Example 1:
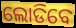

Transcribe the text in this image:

ଲୋଡିବେ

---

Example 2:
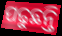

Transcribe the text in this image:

ପଢୁଛନ୍ତି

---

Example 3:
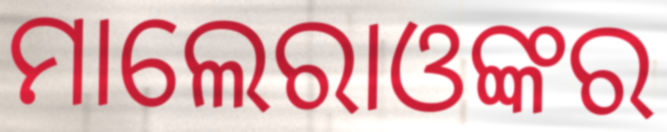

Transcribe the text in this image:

ମାଲେରାଓଙ୍କର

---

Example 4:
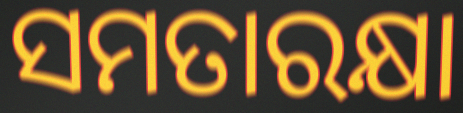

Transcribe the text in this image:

ସମତାରକ୍ଷା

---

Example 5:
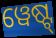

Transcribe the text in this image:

ୱେଷ୍ଟ୍